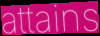
attains